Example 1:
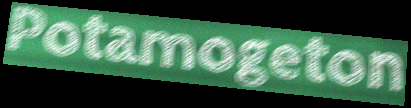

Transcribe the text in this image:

Potamogeton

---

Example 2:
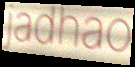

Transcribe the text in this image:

jadhao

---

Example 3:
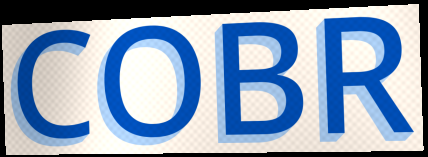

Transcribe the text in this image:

COBR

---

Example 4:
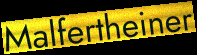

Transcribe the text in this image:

Malfertheiner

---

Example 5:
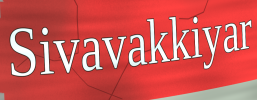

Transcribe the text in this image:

Sivavakkiyar